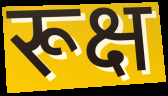
रूक्ष